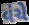
વંચે